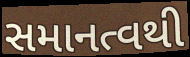
સમાનત્વથી